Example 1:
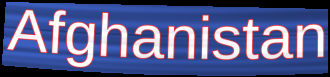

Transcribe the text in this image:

Afghanistan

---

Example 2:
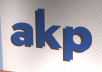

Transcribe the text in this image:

akp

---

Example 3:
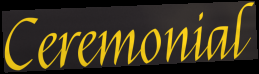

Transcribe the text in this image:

Ceremonial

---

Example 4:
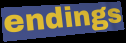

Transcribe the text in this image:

endings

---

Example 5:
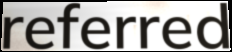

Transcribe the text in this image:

referred